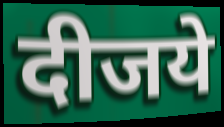
दीजये